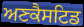
ਅਣਕੈਸਟਿਡ